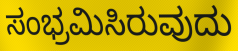
ಸಂಭ್ರಮಿಸಿರುವುದು